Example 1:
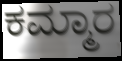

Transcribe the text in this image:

ಕಮ್ಮಾರ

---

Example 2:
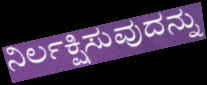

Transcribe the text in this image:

ನಿರ್ಲಕ್ಷಿಸುವುದನ್ನು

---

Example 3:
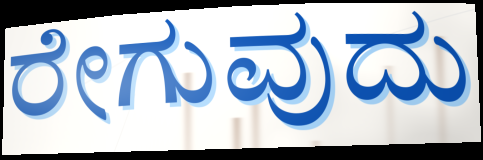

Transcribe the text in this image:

ರೇಗುವುದು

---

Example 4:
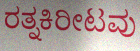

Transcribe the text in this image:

ರತ್ನಕಿರೀಟವು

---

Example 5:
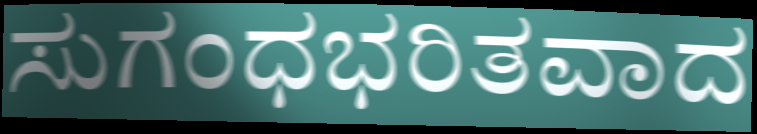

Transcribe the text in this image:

ಸುಗಂಧಭರಿತವಾದ